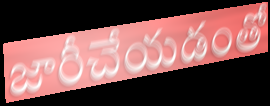
జారీచేయడంతో